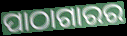
ପାଠାଗାରର